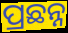
ପ୍ରଛନ୍ନ